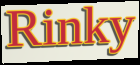
Rinky